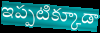
ఇప్పటిక్కూడా